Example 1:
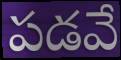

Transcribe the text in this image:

పడవే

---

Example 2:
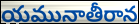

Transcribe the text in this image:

యమునాతీరాన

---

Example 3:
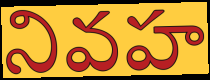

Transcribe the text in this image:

నివహ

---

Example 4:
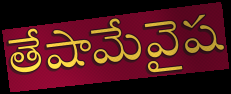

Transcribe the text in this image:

తేషామేవైష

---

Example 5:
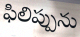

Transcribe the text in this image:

ఫిలిప్పును